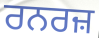
ਰਨਰਜ਼